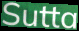
Sutta